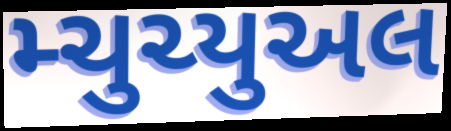
મ્ચુચ્યુઅલ